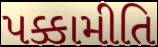
પક્કામીતિ